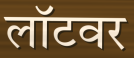
लॉटवर